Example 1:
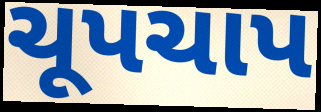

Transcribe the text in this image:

ચૂપચાપ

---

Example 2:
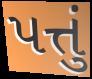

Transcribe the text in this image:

પત્તું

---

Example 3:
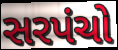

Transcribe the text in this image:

સરપંચો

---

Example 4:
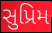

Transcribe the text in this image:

સુપ્રિમ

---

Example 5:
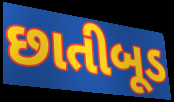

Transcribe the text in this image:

છાતીબૂડ